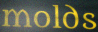
molds